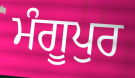
ਮੰਗੂਪੁਰ